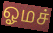
ஓமச்